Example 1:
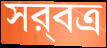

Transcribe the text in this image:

সর্‍বত্র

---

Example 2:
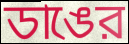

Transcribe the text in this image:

ডাঙের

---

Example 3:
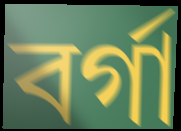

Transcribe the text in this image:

বর্গা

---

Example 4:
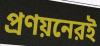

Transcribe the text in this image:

প্রণয়নেরই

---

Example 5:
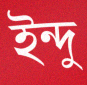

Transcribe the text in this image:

ইন্দু